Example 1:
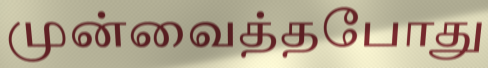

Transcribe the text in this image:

முன்வைத்தபோது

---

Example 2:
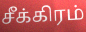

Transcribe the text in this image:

சீக்கிரம்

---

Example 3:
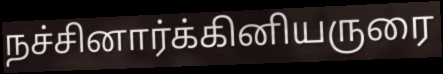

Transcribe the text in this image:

நச்சினார்க்கினியருரை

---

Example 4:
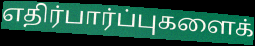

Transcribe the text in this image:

எதிர்பார்ப்புகளைக்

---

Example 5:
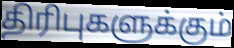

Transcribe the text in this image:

திரிபுகளுக்கும்